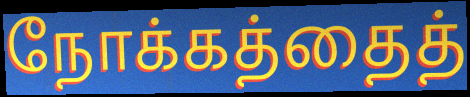
நோக்கத்தைத்